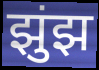
झुंझ